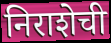
निराशेची